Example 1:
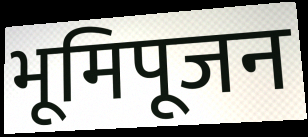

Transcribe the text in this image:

भूमिपूजन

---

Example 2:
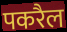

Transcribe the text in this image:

पकरैल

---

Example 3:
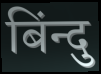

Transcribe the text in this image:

बिंन्दु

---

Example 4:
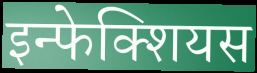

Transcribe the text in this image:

इन्फेक्शियस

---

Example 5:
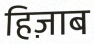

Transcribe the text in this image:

हिज़ाब